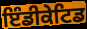
ਇੰਡੀਕੇਟਿਡ